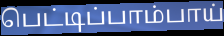
பெட்டிப்பாம்பாய்